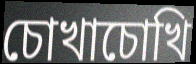
চোখাচোখি